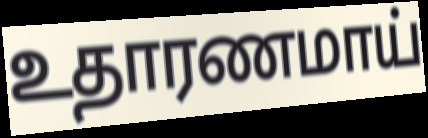
உதாரணமாய்